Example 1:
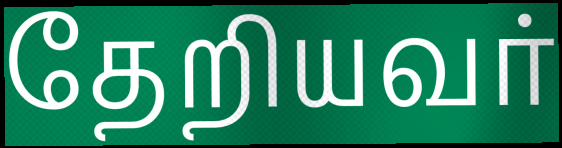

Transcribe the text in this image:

தேறியவர்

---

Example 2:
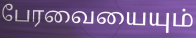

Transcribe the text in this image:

பேரவையையும்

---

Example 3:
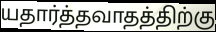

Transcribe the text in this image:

யதார்த்தவாதத்திற்கு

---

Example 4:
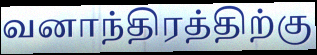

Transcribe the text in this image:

வனாந்திரத்திற்கு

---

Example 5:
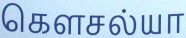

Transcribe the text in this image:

கௌசல்யா